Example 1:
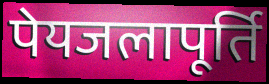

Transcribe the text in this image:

पेयजलापूर्ति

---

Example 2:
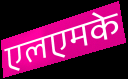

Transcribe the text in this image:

एलएमके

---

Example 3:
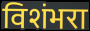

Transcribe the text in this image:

विशंभरा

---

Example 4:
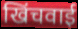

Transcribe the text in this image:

खिंचवाई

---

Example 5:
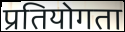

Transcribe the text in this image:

प्रतियोगता